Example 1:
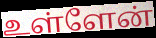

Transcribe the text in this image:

உள்ளேன்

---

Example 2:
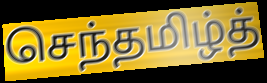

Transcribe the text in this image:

செந்தமிழ்த்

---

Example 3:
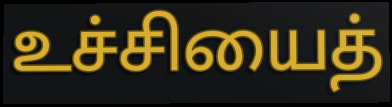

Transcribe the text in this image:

உச்சியைத்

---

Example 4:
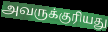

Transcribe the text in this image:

அவருக்குரியது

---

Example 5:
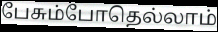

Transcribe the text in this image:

பேசும்போதெல்லாம்